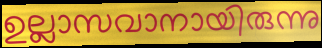
ഉല്ലാസവാനായിരുന്നു